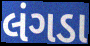
લંગડા